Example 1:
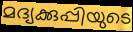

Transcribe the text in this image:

മദ്യക്കുപ്പിയുടെ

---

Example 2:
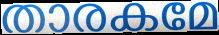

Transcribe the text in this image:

താരകമേ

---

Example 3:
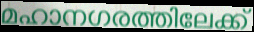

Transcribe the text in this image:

മഹാനഗരത്തിലേക്ക്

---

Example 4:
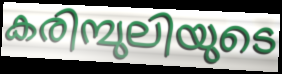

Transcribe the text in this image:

കരിമ്പുലിയുടെ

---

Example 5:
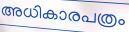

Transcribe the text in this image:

അധികാരപത്രം